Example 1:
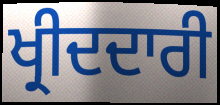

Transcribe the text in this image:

ਖ੍ਰੀਦਦਾਰੀ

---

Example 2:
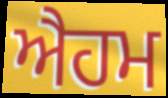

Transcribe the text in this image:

ਐਹਮ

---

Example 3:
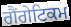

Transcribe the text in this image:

ਗੈਂਗੇਟਿਕਮ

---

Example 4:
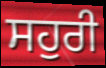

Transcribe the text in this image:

ਸਹੁਰੀ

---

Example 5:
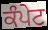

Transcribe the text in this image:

ਕੰਪੇਟ